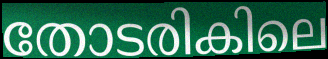
തോടരികിലെ